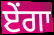
ਏਂਗਾ